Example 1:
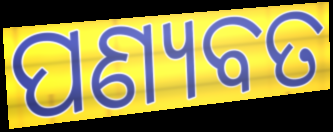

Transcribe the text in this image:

ପଣ୍ୟବତ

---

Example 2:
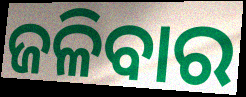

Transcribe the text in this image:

ଜଳିବାର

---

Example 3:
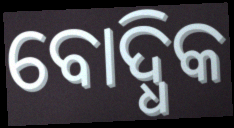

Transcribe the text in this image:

ବୋଦ୍ଧିକ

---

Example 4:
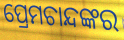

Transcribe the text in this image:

ପ୍ରେମଚାନ୍ଦଙ୍କର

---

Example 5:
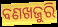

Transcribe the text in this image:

ବଣଖଜୁରି